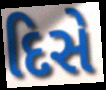
દિસે